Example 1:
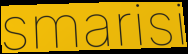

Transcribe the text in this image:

smarisi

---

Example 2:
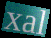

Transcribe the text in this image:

xal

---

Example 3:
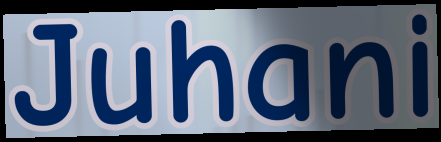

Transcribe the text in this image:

Juhani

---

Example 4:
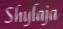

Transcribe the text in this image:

Shylaja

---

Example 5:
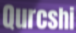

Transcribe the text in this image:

Qurcshi